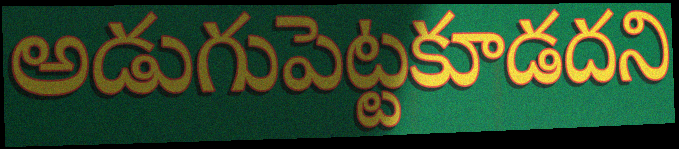
అడుగుపెట్టకూడదని